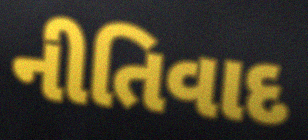
નીતિવાદ